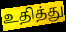
உதித்து